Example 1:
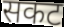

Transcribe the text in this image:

सकट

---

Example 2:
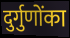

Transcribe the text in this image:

दुर्गुणोंका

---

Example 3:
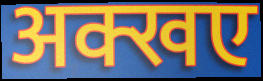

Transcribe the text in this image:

अक्खए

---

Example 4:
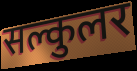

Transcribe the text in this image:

सल्कुलर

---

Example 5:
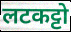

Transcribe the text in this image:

लटकट्टो